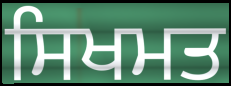
ਸਿਖਮਤ